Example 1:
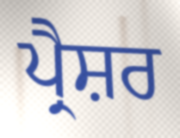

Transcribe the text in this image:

ਪ੍ਰੈਸ਼ਰ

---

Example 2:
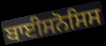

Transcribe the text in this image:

ਬਾਈਸਨੋਸਿਸ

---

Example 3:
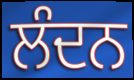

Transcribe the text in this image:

ਲੰਦਨ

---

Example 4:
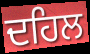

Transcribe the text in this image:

ਦਹਿਲ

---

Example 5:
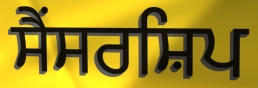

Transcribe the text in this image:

ਸੈਂਸਰਸ਼ਿਪ